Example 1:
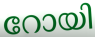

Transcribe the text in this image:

റോയി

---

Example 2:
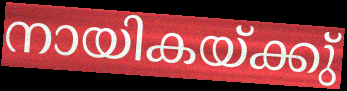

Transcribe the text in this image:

നായികയ്ക്കു്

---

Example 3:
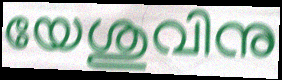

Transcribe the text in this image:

യേശുവിനു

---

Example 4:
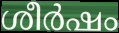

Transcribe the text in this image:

ശീർഷം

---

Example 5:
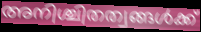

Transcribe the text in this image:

അനിശ്ചിതത്വങ്ങൾക്ക്